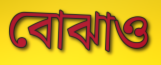
বোঝাও